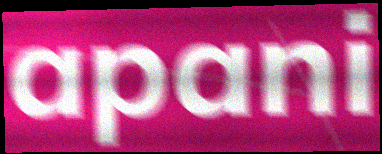
apani